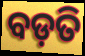
ବଡ଼ତି